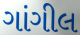
ગાંગીલ